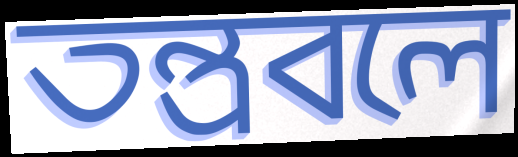
তন্ত্রবলে